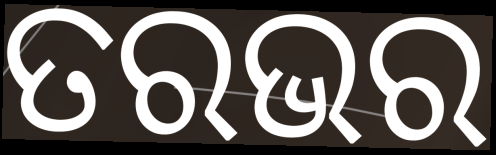
ତରଭର